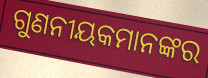
ଗୁଣନୀୟକମାନଙ୍କର